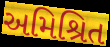
અમિશ્રિત